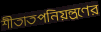
শীতাতপনিয়ন্ত্রণের